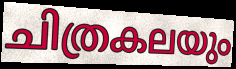
ചിത്രകലയും